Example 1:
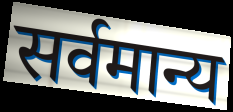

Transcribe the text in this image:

सर्वमान्य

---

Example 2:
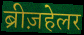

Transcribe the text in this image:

ब्रीज़हेलर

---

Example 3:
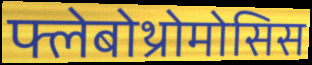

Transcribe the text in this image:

फ्लेबोथ्रोमोसिस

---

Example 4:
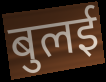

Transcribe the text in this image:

बुलई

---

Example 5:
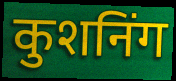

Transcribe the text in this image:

कुशनिंग